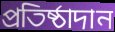
প্রতিষ্ঠাদান